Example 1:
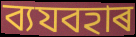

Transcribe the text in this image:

ব্যযবহাৰ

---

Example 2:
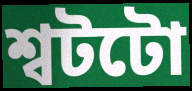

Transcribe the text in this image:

শ্বটটো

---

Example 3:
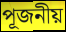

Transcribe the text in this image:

পূজনীয়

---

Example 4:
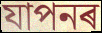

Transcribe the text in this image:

যাপনৰ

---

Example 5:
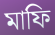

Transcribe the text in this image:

মাফি